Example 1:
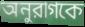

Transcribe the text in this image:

অনুরাগকে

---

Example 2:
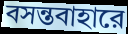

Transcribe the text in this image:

বসন্তবাহারে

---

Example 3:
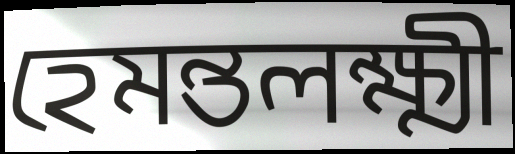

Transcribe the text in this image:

হেমন্তলক্ষ্মী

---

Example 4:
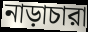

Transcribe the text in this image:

নাড়াচারা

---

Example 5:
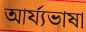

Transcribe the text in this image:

আর্য্যভাষা